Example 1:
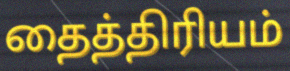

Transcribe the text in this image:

தைத்திரியம்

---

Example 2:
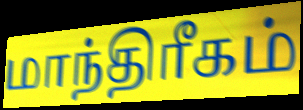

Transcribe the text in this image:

மாந்திரீகம்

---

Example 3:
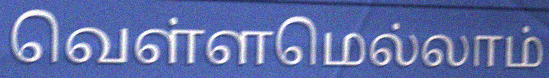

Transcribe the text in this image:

வெள்ளமெல்லாம்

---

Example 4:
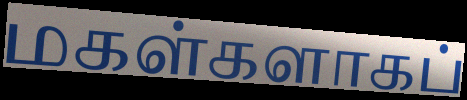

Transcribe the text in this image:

மகள்களாகப்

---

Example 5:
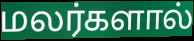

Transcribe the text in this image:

மலர்களால்